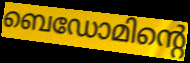
ബെഡോമിന്റെ